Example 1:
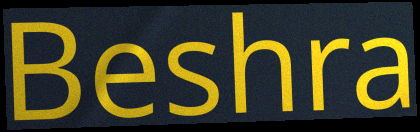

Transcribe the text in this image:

Beshra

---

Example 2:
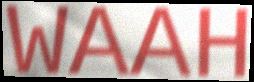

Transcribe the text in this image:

WAAH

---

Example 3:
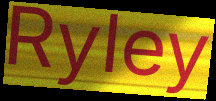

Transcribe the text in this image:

Ryley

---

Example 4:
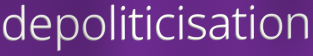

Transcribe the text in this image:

depoliticisation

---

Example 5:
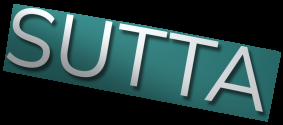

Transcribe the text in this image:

SUTTA